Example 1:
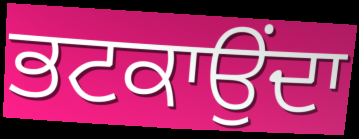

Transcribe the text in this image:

ਭਟਕਾਉਂਦਾ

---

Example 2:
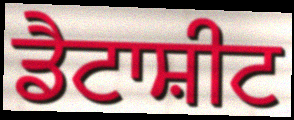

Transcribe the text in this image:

ਡੈਟਾਸ਼ੀਟ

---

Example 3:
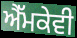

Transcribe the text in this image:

ਐੱਮਕੇਵੀ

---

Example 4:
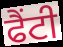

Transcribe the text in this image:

ਫੈਂਟੀ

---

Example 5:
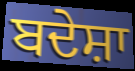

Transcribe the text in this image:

ਬਦੇਸ਼ਾ